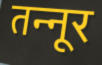
तन्नूर